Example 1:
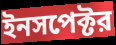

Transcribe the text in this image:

ইনসপেক্টর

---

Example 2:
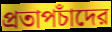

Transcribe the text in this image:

প্রতাপচাঁদের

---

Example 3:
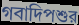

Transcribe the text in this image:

গবাদিপশুর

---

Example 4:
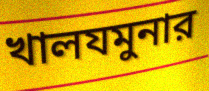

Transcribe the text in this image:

খালযমুনার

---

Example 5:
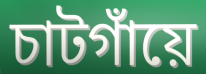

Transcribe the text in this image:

চাটগাঁয়ে